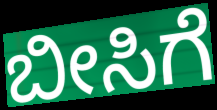
ಬೀಸಿಗೆ